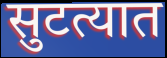
सुटत्यात